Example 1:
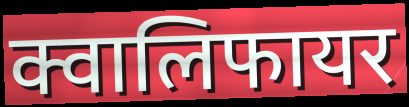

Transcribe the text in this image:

क्वालिफायर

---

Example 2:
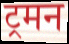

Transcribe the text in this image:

ट्रमन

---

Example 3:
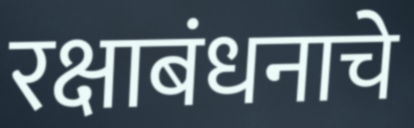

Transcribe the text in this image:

रक्षाबंधनाचे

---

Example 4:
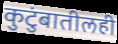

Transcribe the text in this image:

कुटुंबातीलही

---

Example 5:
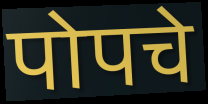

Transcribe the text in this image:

पोपचे